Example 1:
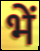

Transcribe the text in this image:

भें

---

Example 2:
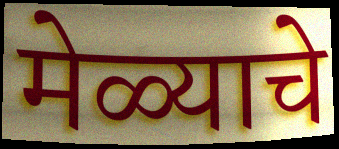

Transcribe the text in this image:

मेळ्याचे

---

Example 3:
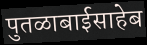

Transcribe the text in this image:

पुतळाबाईसाहेब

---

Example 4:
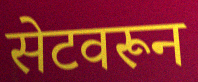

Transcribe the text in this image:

सेटवरून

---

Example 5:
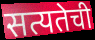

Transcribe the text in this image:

सत्यतेची